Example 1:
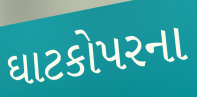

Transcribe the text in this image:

ઘાટકોપરના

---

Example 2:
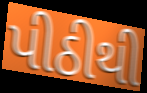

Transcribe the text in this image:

પીઠીથી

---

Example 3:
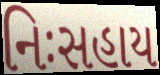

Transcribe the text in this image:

નિઃસહાય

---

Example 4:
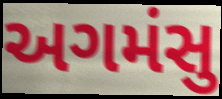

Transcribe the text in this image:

અગમંસુ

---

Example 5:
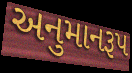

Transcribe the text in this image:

અનુમાનરૂપ